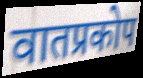
वातप्रकोप